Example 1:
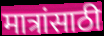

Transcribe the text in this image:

मात्रांसाठी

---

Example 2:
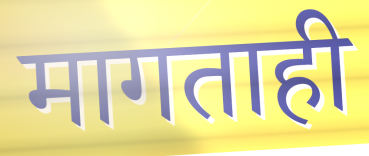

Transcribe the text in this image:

मागताही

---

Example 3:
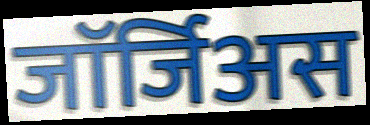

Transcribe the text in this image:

जॉर्जिअस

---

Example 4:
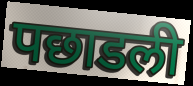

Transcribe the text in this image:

पछाडली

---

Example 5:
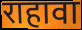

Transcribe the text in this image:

राहावा